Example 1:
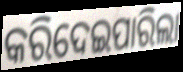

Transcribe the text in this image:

କରିଦେଇପାରିଲା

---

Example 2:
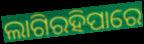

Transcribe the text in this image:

ଲାଗିରହିପାରେ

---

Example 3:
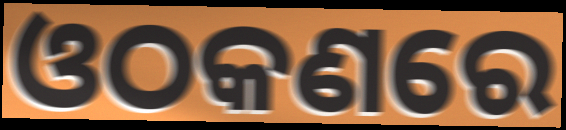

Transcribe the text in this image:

ଓଠକଣରେ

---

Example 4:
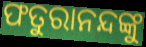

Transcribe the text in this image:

ଫତୁରାନନ୍ଦଙ୍କୁ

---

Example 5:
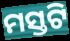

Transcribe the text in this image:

ମସ୍ତଟି